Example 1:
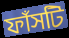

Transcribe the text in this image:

ফাঁসটি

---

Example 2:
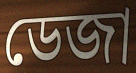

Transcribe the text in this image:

ডেজা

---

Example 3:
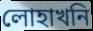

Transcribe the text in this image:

লোহাখনি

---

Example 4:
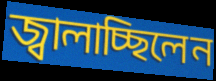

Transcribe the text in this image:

জ্বালাচ্ছিলেন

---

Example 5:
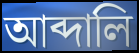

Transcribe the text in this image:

আব্দালি